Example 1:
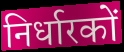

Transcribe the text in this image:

निर्धारकों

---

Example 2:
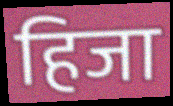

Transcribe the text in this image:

हिजा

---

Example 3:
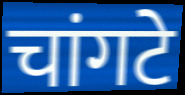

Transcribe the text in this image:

चांगटे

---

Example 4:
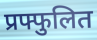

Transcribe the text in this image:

प्रफ्फुलित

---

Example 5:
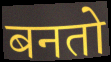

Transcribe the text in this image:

बनतो